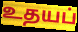
உதயப்